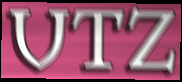
UTZ